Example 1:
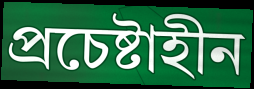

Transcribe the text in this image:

প্রচেষ্টাহীন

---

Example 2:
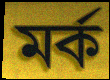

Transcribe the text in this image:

মর্ক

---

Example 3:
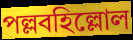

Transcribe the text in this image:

পল্লবহিল্লোল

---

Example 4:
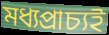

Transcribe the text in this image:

মধ্যপ্রাচ্যই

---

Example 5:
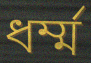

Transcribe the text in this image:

ধর্ম্ম